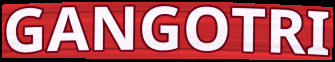
GANGOTRI